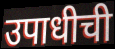
उपाधीची